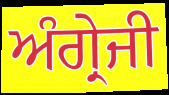
ਅੰਗ੍ਰੇਜੀ